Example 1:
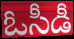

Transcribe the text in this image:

ఓసీడీ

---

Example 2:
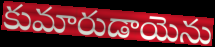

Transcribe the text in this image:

కుమారుడాయెను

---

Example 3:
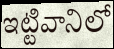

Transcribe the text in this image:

ఇట్టివానిలో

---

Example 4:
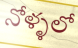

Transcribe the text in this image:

నోళ్ళలో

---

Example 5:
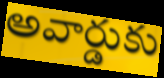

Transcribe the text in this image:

అవార్డుకు